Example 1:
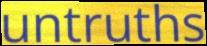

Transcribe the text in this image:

untruths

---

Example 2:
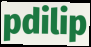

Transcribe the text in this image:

pdilip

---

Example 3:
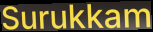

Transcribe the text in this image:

Surukkam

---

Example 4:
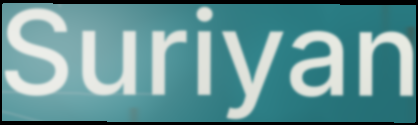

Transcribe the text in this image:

Suriyan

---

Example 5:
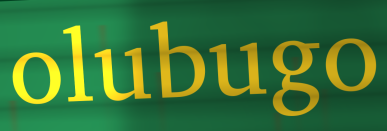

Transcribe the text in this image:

olubugo